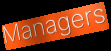
Managers